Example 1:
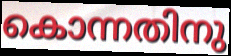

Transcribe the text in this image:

കൊന്നതിനു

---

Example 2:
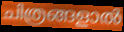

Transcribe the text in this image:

ചിത്രങ്ങളാൽ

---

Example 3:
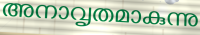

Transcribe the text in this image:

അനാവൃതമാകുന്നു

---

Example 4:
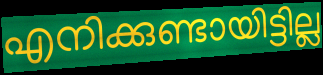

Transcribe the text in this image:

എനിക്കുണ്ടായിട്ടില്ല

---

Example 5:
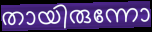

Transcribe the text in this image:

തായിരുന്നോ